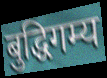
बुद्धिगम्य